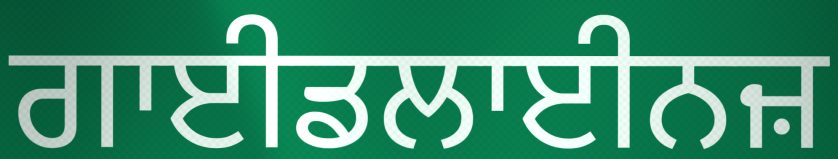
ਗਾਈਡਲਾਈਨਜ਼